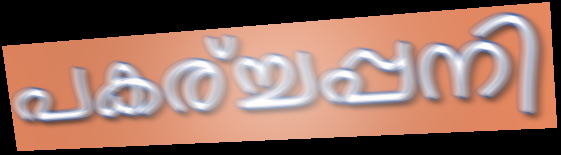
പകര്ച്ചപ്പനി